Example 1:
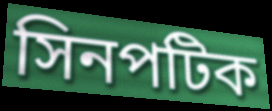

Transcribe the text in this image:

সিনপটিক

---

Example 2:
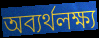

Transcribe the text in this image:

অব্যর্থলক্ষ্য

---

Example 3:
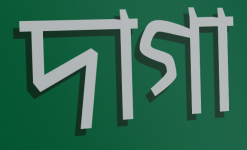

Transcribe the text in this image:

দাগা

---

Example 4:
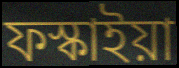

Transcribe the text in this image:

ফস্কাইয়া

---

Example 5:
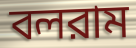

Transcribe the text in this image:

বলরাম